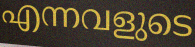
എന്നവളുടെ